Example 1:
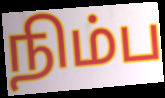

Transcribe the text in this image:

நிம்ப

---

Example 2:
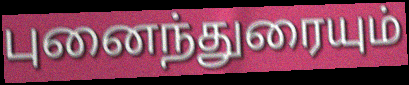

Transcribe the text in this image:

புனைந்துரையும்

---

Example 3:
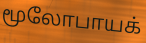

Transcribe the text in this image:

மூலோபாயக்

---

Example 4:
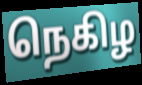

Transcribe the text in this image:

நெகிழ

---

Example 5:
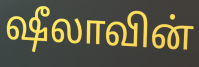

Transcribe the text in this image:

ஷீலாவின்